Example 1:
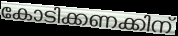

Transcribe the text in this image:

കോടിക്കണക്കിന്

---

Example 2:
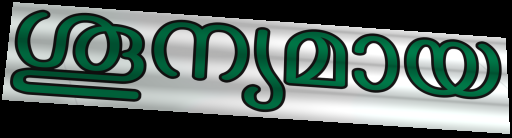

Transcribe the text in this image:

ശൂന്യമായ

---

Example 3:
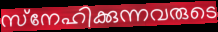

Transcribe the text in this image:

സ്‌നേഹിക്കുന്നവരുടെ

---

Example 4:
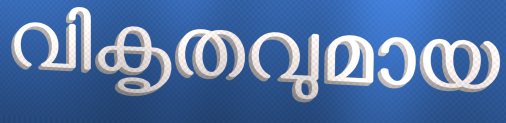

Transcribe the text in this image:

വികൃതവുമായ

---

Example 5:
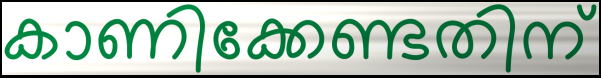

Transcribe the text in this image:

കാണിക്കേണ്ടതിന്